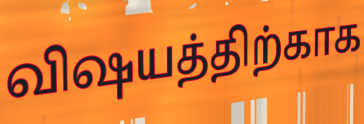
விஷயத்திற்காக